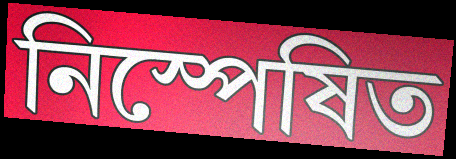
নিস্পেষিত